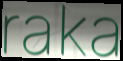
raka